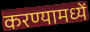
करण्यामध्यें